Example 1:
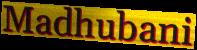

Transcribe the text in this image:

Madhubani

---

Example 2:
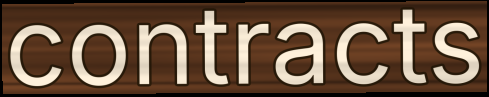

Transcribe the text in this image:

contracts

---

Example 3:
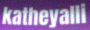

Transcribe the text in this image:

katheyalli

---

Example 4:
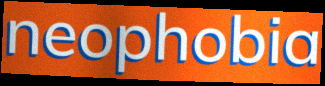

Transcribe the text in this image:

neophobia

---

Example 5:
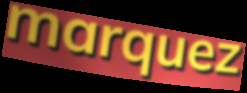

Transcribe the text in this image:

marquez